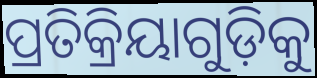
ପ୍ରତିକ୍ରିୟାଗୁଡ଼ିକୁ